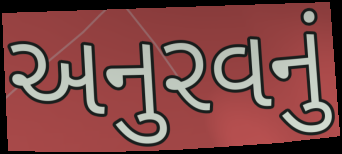
અનુરવનું